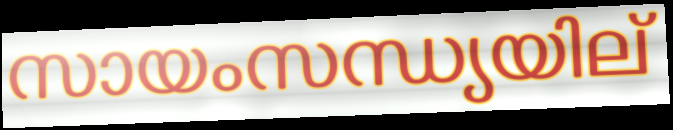
സായംസന്ധ്യയില്